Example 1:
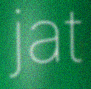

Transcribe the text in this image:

jat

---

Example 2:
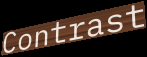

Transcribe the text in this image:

Contrast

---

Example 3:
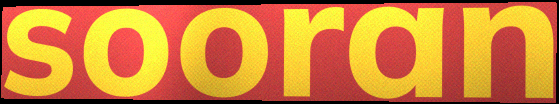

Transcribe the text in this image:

sooran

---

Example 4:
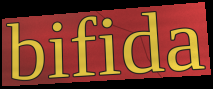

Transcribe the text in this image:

bifida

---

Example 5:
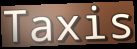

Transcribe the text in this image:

Taxis